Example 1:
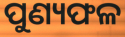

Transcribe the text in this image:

ପୁଣ୍ୟଫଳ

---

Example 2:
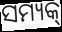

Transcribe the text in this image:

ସମ୍ୟକ୍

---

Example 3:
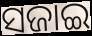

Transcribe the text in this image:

ସଜାଇ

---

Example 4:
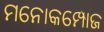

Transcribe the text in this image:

ମନୋକମ୍ପୋଜ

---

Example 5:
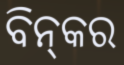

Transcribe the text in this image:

ବିନ୍‌କର